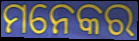
ମନେକର